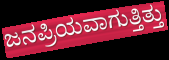
ಜನಪ್ರಿಯವಾಗುತ್ತಿತ್ತು